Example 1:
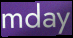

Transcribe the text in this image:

mday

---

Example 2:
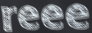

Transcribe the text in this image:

reee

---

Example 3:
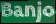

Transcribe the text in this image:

Banjo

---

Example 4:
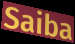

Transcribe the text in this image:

Saiba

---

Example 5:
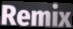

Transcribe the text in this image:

Remix